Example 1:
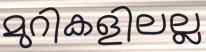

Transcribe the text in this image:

മുറികളിലല്ല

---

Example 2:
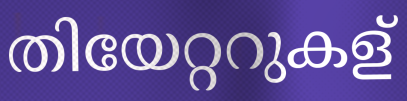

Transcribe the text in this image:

തിയേറ്ററുകള്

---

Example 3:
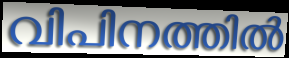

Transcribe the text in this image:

വിപിനത്തിൽ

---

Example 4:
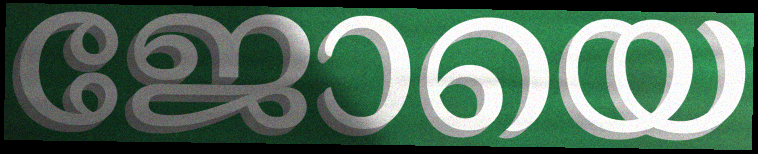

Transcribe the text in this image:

ജോയെ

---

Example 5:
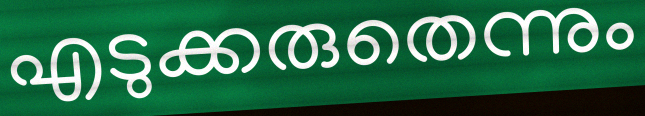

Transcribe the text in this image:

എടുക്കരുതെന്നും